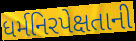
ધર્મનિરપેક્ષતાની